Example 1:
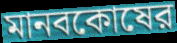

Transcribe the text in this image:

মানবকোষের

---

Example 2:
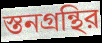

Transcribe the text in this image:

স্তনগ্রন্থির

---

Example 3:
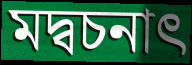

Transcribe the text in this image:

মদ্বচনাৎ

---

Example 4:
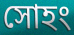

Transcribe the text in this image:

সোহং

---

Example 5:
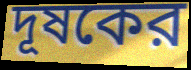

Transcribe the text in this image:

দূষকের